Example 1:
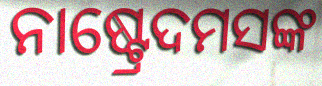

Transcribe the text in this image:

ନାଷ୍ଟ୍ରେଦମସଙ୍କ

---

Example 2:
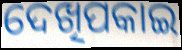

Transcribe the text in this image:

ଦେଖିପକାଇ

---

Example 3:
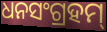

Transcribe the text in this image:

ଧନସଂଗ୍ରହମ୍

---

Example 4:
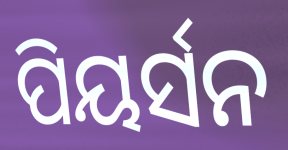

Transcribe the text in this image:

ପିୟର୍ସନ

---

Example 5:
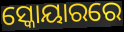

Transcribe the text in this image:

ସ୍କୋୟାରରେ